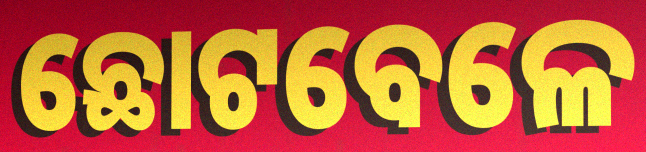
ଛୋଟବେଳେ